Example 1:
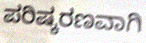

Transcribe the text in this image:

ಪರಿಷ್ಕರಣವಾಗಿ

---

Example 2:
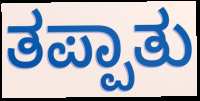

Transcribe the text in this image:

ತಪ್ಪಾತು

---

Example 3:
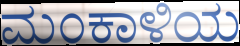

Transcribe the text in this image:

ಮಂಕಾಳಿಯ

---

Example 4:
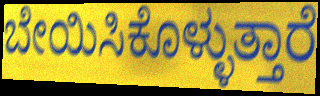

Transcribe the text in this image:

ಬೇಯಿಸಿಕೊಳ್ಳುತ್ತಾರೆ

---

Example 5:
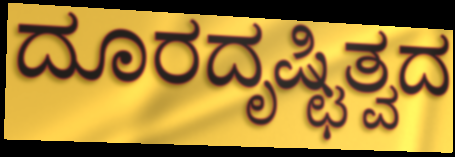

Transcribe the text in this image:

ದೂರದೃಷ್ಟಿತ್ವದ